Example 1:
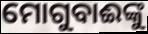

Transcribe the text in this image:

ମୋଗୁବାଈଙ୍କୁ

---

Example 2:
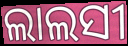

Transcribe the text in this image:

ଲାଲସୀ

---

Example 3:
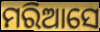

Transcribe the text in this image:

ମରିଆସେ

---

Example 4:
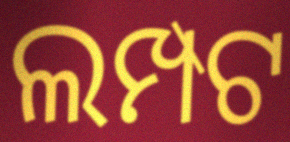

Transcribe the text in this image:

ଲମ୍ପଟ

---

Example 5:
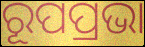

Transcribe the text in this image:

ରୂପପ୍ରଭା